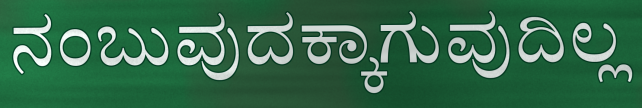
ನಂಬುವುದಕ್ಕಾಗುವುದಿಲ್ಲ